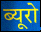
ब्‍यूरो